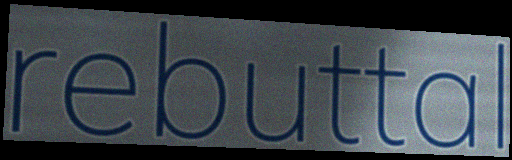
rebuttal